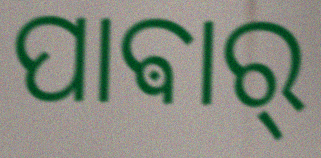
ପାଵାର୍